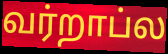
வர்றாப்ல